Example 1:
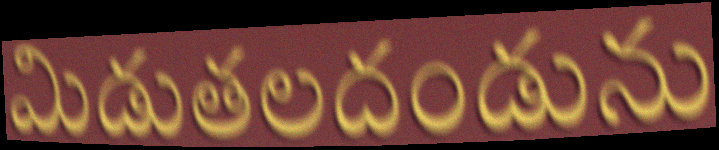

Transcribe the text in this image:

మిడుతలదండును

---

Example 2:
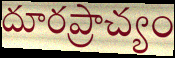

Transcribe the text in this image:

దూరప్రాచ్యం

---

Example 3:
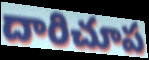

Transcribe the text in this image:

దారిచూప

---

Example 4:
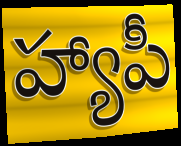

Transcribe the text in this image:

హ్యాపీ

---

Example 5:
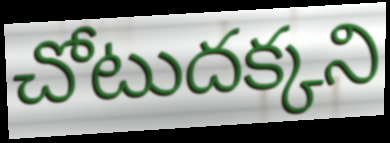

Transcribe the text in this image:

చోటుదక్కని